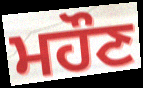
ਮਹੌਣ